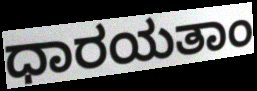
ಧಾರಯತಾಂ